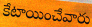
కేటాయించేవారు